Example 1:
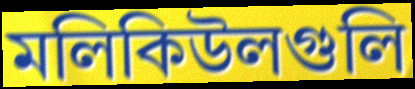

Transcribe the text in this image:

মলিকিউলগুলি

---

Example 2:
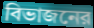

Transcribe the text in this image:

বিভাজনের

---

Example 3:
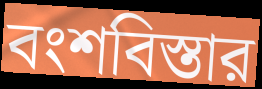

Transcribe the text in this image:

বংশবিস্তার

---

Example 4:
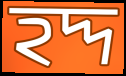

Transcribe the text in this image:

হদ্দ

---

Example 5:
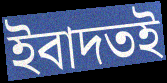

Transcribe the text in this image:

ইবাদতই